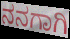
ನನಗಾಗಿ